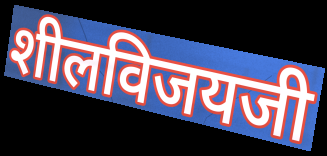
शीलविजयजी